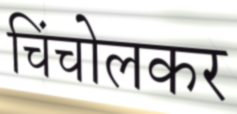
चिंचोलकर